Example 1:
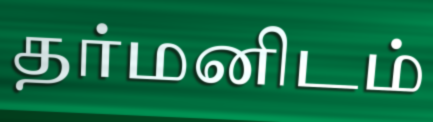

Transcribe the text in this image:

தர்மனிடம்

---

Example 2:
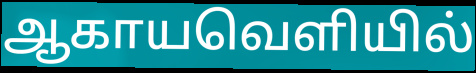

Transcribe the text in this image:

ஆகாயவெளியில்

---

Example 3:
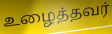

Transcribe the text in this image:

உழைத்தவர்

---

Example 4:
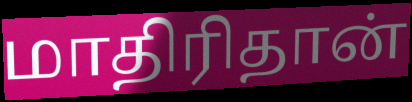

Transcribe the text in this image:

மாதிரிதான்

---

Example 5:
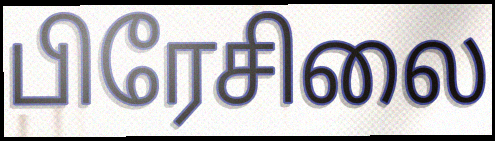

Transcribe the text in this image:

பிரேசிலை